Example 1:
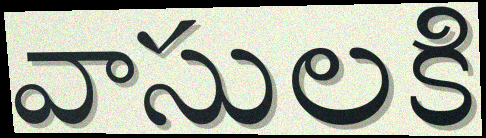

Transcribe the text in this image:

వాసులకి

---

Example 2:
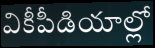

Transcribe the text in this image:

వికీపీడియాల్లో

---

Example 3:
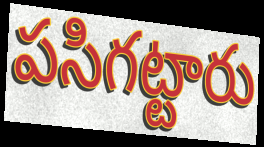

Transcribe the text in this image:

పసిగట్టారు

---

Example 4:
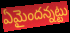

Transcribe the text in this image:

ఏమైందన్నట్టు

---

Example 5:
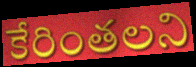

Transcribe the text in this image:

కేరింతలని